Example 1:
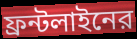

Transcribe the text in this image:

ফ্রন্টলাইনের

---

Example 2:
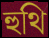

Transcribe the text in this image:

হুথি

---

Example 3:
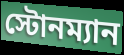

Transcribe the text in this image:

স্টোনম্যান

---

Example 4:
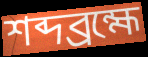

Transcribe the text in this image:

শব্দব্রহ্মে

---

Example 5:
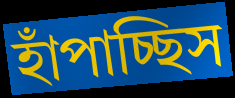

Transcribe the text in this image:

হাঁপাচ্ছিস